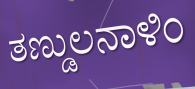
ತಣ್ಡುಲನಾಳಿಂ